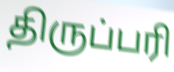
திருப்பரி